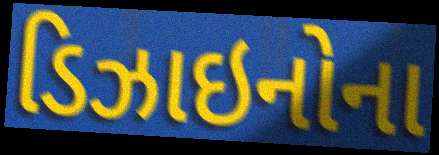
ડિઝાઇનોના